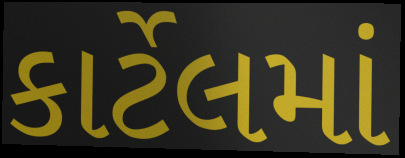
કાર્ટેલમાં